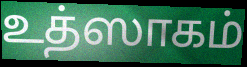
உத்ஸாகம்